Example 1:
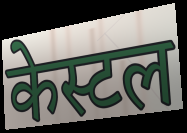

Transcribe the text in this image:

केस्टल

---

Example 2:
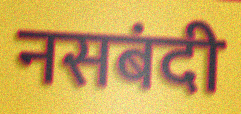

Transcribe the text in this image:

नसबंदी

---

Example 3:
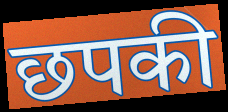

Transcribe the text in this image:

छपकी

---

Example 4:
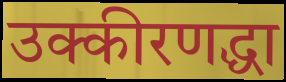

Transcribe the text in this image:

उक्कीरणद्धा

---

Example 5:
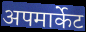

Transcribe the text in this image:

अपमार्केट